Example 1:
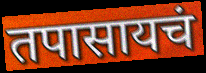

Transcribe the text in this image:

तपासायचं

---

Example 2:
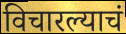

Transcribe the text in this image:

विचारल्याचं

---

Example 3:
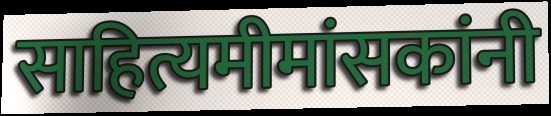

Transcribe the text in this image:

साहित्यमीमांसकांनी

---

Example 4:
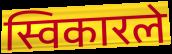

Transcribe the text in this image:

स्विकारले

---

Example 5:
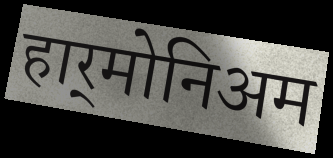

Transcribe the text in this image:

हार्मोनिअम